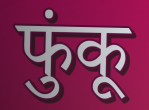
फुंकू